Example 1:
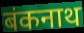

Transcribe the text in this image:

बंकनाथ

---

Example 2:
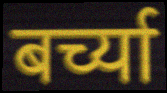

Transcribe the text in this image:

बर्च्या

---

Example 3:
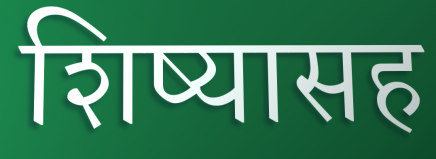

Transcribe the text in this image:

शिष्यासह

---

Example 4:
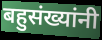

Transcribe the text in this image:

बहुसंख्यांनी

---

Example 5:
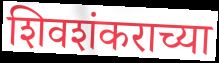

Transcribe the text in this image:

शिवशंकराच्या